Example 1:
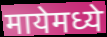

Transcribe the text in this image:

मायेमध्ये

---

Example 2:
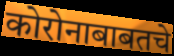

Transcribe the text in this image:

कोरोनाबाबतचे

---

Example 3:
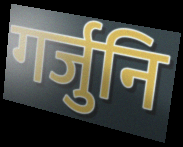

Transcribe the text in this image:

गर्जुनि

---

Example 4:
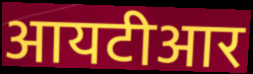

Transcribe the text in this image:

आयटीआर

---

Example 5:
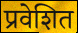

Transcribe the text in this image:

प्रवेशित